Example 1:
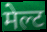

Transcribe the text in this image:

मेल्ट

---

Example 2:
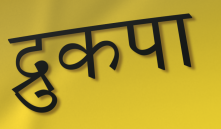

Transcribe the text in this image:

द्रुकपा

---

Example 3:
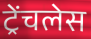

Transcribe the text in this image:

ट्रेंचलेस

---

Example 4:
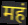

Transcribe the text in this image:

महं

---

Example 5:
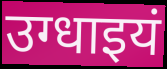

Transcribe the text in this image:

उग्धाइयं